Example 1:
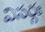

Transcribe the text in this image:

విసర్గః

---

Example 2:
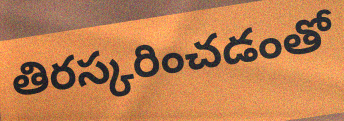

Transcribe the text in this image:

తిరస్కరించడంతో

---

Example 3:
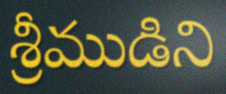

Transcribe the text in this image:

శ్రీముడిని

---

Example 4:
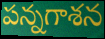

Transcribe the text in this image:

పన్నగాశన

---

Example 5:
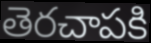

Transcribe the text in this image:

తెరచాపకి